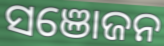
ସଞୋଜନ